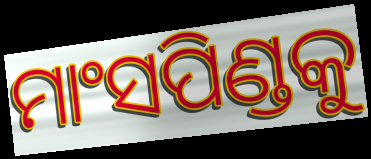
ମାଂସପିଣ୍ଡକୁ